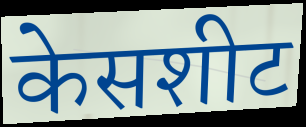
केसशीट